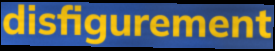
disfigurement